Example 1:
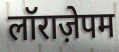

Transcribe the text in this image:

लॉराज़ेपम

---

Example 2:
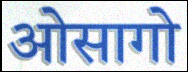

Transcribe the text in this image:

ओसागो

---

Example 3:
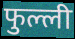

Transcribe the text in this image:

फुल्ली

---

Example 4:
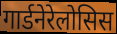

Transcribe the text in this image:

गार्डनेरेलोसिस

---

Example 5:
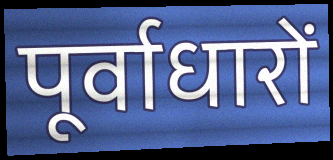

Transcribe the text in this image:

पूर्वाधारों